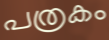
പത്രകം